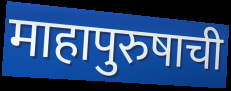
माहापुरुषाची